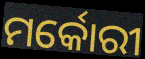
ମର୍କୋରୀ